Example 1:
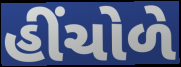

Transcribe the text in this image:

હીંચોળે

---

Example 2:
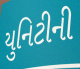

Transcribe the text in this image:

યુનિટીની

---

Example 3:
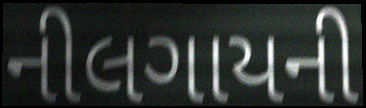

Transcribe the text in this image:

નીલગાયની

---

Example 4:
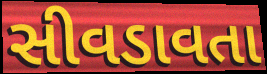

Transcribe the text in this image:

સીવડાવતા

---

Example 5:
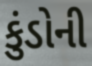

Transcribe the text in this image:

કુંડોની